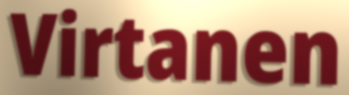
Virtanen